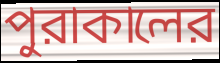
পুরাকালের